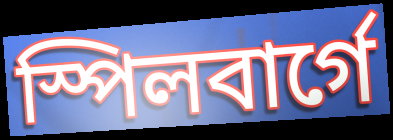
স্পিলবাৰ্গে